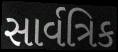
સાર્વત્રિક